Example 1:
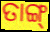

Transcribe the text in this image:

ତାଙ୍ଗ୍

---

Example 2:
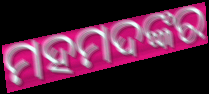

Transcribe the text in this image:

ମହମଦଙ୍କର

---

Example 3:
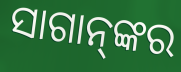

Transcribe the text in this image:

ସାଗାନ୍‌ଙ୍କର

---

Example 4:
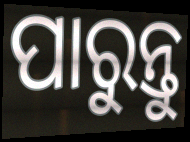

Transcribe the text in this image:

ପାରୁନ୍ତୁ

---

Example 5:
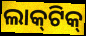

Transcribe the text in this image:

ଲାକ୍‌ଟିକ୍